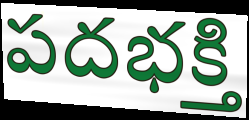
పదభక్తి